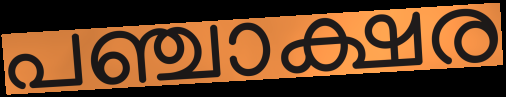
പഞ്ചാക്ഷര